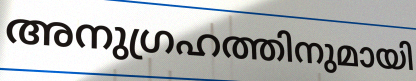
അനുഗ്രഹത്തിനുമായി